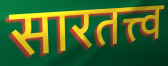
सारतत्त्व